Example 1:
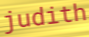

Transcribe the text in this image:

judith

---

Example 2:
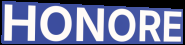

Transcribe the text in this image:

HONORE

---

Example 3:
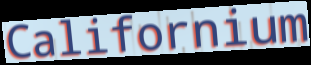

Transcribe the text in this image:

Californium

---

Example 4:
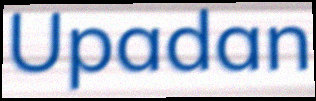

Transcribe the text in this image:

Upadan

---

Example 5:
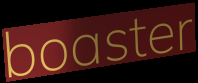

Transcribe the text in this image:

boaster